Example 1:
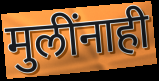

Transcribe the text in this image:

मुलींनाही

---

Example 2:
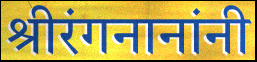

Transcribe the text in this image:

श्रीरंगनानांनी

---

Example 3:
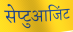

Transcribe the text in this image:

सेप्टुआजिंट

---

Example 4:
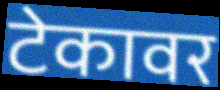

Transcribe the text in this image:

टेकावर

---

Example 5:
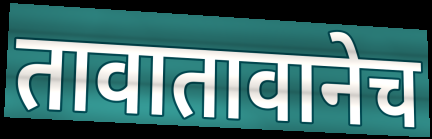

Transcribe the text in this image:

तावातावानेच